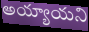
అయ్యాయని